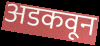
अडकवून